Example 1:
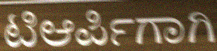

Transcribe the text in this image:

ಟಿಆರ್ಪಿಗಾಗಿ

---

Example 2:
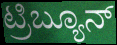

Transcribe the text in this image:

ಟ್ರಿಬ್ಯೂನ್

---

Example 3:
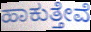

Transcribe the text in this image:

ಹಾಕುತ್ತೇವೆ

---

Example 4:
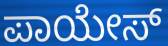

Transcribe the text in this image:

ಪಾಯೇಸ್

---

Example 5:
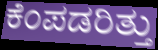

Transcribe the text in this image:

ಕೆಂಪಡರಿತ್ತು